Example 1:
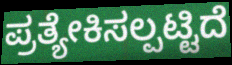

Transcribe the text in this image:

ಪ್ರತ್ಯೇಕಿಸಲ್ಪಟ್ಟಿದೆ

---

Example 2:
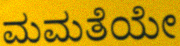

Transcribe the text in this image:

ಮಮತೆಯೇ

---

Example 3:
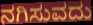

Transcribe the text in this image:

ನಗಿಸುವದು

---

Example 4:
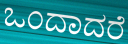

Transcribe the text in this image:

ಒಂದಾದರೆ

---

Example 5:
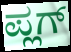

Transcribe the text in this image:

ಪ್ಲಗ್